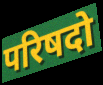
परिषदो